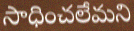
సాధించలేమని